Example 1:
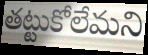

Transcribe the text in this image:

తట్టుకోలేమని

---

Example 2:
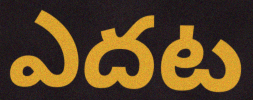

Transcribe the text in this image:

ఎదట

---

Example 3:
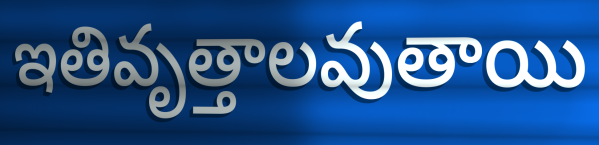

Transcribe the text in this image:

ఇతివృత్తాలవుతాయి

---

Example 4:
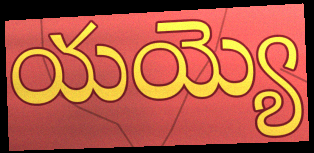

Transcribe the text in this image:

యయ్యె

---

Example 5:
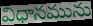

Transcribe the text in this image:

విధానమును